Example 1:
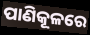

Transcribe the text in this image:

ପାଣିକୂଳରେ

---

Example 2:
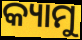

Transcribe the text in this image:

କ୍ୟାମୁ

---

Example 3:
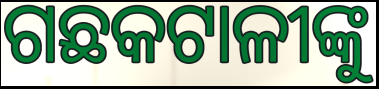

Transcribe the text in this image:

ଗଛକଟାଳୀଙ୍କୁ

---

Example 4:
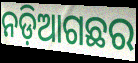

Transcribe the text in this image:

ନଡ଼ିଆଗଛର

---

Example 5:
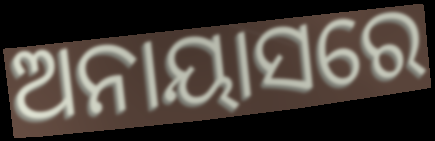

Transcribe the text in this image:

ଅନାୟାସରେ